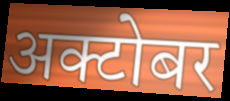
अक्टोबर